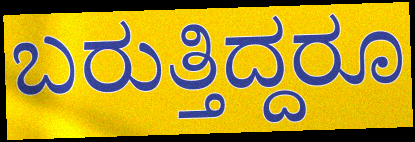
ಬರುತ್ತಿದ್ದರೂ